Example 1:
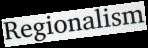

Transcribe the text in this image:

Regionalism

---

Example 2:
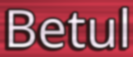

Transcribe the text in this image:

Betul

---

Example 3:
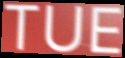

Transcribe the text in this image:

TUE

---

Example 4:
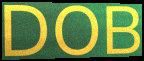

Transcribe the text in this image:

DOB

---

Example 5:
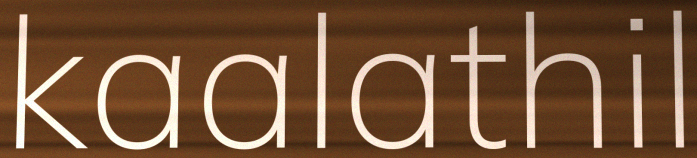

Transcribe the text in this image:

kaalathil